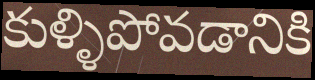
కుళ్ళిపోవడానికి